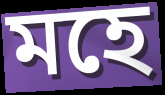
মহে